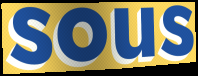
sous